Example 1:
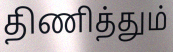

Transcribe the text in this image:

திணித்தும்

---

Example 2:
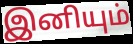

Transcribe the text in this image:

இனியும்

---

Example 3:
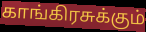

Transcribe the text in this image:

காங்கிரசுக்கும்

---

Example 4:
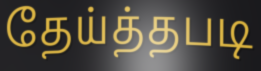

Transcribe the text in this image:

தேய்த்தபடி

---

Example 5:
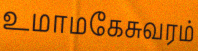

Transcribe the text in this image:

உமாமகேசுவரம்